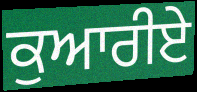
ਕੁਆਰੀਏ